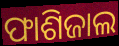
ଫାଶିଜାଲ